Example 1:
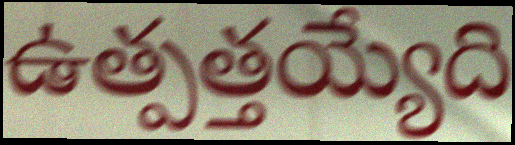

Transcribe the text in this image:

ఉత్పత్తయ్యేది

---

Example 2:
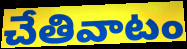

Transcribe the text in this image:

చేతివాటం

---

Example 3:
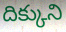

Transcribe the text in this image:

దిక్కుని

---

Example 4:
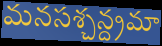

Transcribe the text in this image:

మనసశ్చన్ద్రమా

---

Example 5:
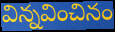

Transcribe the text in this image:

విన్నవించినం